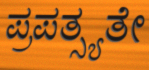
ಪ್ರಪತ್ಸ್ಯತೇ